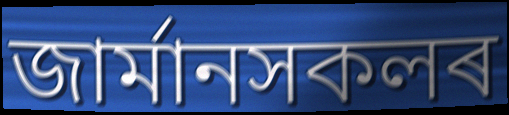
জাৰ্মানসকলৰ